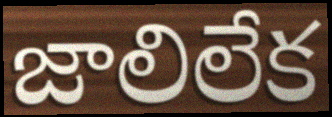
జాలిలేక